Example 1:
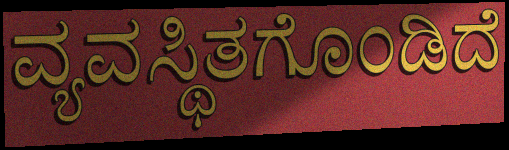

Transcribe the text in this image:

ವ್ಯವಸ್ಥಿತಗೊಂಡಿದೆ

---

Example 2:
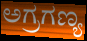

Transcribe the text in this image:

ಅಗ್ರಗಣ್ಯ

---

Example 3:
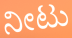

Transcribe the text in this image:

ನೀಟು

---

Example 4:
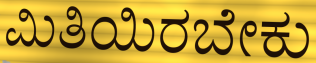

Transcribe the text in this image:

ಮಿತಿಯಿರಬೇಕು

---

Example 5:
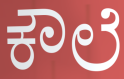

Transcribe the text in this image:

ಕೌಲೆ